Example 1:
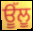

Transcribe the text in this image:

ਊੱਲੂ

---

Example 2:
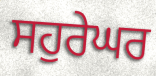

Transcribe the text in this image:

ਸਹੁਰੇਘਰ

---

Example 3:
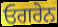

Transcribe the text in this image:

ਓਗਰੇਨ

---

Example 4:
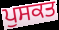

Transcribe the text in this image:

ਪੁਸਕਤ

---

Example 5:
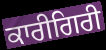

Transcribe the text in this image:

ਕਾਰੀਗਿਰੀ